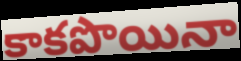
కాకపొయినా